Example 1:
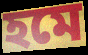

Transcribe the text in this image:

হমে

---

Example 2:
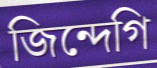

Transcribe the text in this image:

জিন্দেগি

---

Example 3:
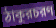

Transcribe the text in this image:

ঠাকুরচরণ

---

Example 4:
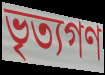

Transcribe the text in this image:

ভৃত্যগণ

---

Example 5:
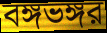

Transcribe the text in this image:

বঙ্গভঙ্গর